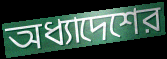
অধ্যাদেশের